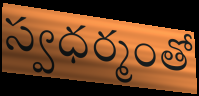
స్వధర్మంతో